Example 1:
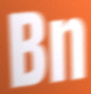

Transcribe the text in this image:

Bn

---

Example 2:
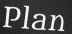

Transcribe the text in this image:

Plan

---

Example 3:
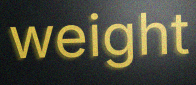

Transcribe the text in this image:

weight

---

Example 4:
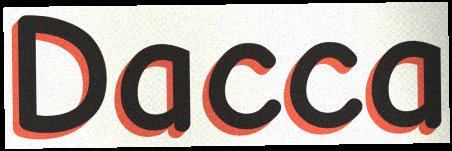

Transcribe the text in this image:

Dacca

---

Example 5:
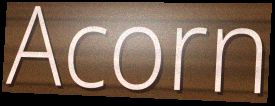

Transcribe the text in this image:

Acorn